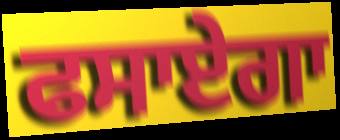
ਫਸਾਏਗਾ